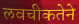
लवचीकतेने